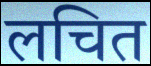
लचित